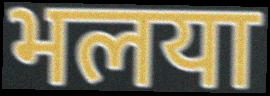
भलया